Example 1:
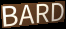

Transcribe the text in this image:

BARD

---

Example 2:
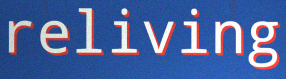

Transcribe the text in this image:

reliving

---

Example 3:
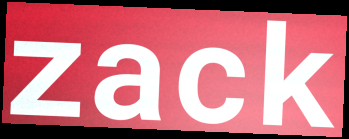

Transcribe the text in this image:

zack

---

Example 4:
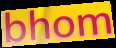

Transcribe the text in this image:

bhom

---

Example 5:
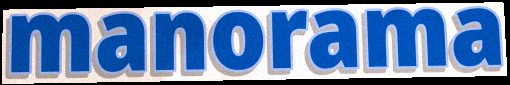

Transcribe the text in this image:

manorama